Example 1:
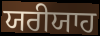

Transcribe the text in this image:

ਯਰੀਯਾਹ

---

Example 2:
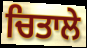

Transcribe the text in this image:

ਚਿਤਾਲੇ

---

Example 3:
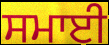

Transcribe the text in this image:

ਸਮਾਈ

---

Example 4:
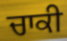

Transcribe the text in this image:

ਚਾਕੀ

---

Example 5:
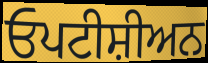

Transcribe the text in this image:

ਓਪਟੀਸ਼ੀਅਨ